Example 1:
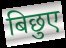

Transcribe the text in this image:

बिछुए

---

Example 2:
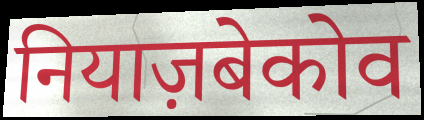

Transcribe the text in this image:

नियाज़बेकोव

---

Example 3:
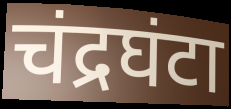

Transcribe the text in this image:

चंद्रघंटा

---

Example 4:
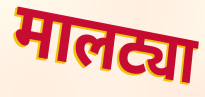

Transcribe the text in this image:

मालट्या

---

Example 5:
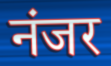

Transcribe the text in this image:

नंजर